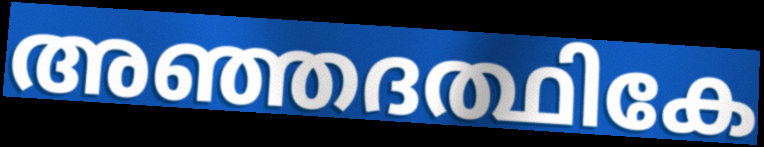
അഞ്ഞദത്ഥികേ